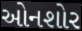
ઓનશોર